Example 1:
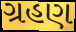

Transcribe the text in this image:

ગ્રહણ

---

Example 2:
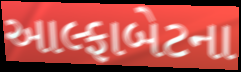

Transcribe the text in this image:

આલ્ફાબેટના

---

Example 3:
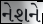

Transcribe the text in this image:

નેશને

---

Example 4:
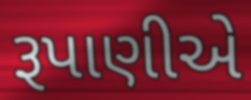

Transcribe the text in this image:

રૂપાણીએ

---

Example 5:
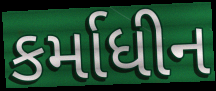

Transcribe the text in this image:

કર્માધીન